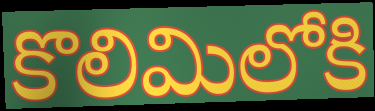
కొలిమిలోకి